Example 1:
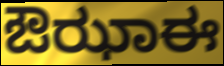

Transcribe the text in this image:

ಔಝಾಈ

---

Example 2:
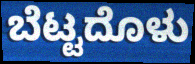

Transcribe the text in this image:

ಬೆಟ್ಟದೊಳು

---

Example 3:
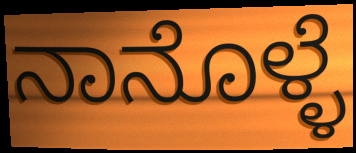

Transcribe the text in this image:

ನಾನೊಳ್ಳೆ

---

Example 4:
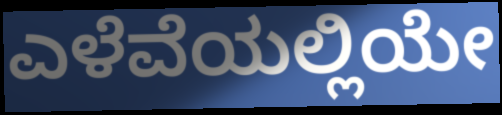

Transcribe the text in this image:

ಎಳೆವೆಯಲ್ಲಿಯೇ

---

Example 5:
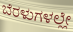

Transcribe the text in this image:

ಬೆರಳುಗಳಲ್ಲೇ